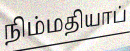
நிம்மதியாப்